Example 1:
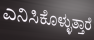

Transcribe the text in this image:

ಎನಿಸಿಕೊಳ್ಳುತ್ತಾರೆ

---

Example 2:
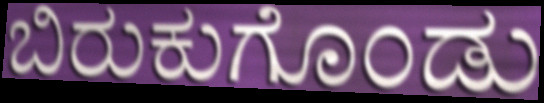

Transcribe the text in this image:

ಬಿರುಕುಗೊಂಡು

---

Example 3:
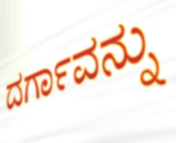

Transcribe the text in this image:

ದರ್ಗಾವನ್ನು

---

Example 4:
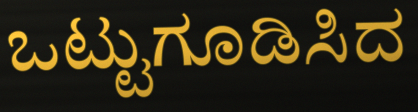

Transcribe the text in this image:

ಒಟ್ಟುಗೂಡಿಸಿದ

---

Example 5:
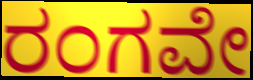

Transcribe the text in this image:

ರಂಗವೇ